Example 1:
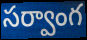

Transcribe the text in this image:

సర్వాంగ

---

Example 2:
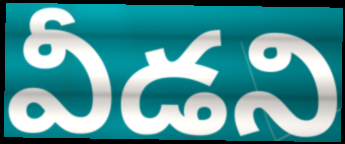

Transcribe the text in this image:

వీడని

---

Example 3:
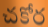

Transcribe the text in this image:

చకోర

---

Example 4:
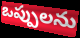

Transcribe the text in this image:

ఒప్పులను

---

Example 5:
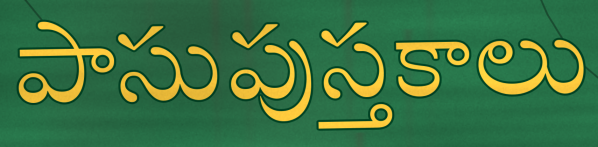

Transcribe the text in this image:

పాసుపుస్తకాలు